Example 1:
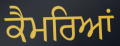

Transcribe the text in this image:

ਕੈਮਰਿਆਂ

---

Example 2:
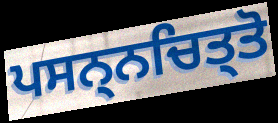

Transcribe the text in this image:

ਪਸਨ੍ਨਚਿਤ੍ਤੋ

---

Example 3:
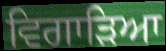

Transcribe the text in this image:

ਵਿਗਾੜਿਆ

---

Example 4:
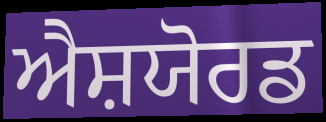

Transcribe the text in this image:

ਐਸ਼ਯੋਰਡ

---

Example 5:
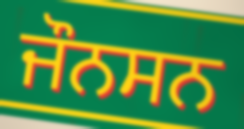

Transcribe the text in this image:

ਜੌਨਸਨ